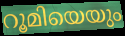
റൂമിയെയും